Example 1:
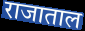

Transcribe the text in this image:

राजाताल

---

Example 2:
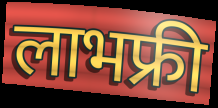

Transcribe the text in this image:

लाभफ्री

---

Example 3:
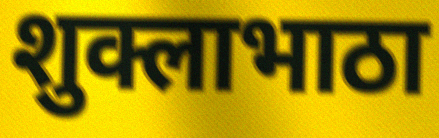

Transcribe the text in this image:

शुक्लाभाठा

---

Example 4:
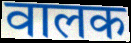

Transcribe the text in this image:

वालक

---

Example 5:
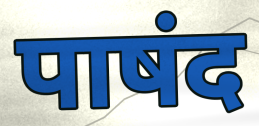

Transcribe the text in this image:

पाषंद